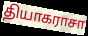
தியாகராசா